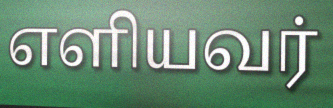
எளியவர்